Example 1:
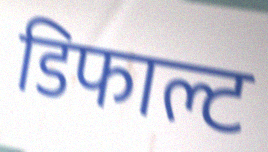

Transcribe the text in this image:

डिफाल्ट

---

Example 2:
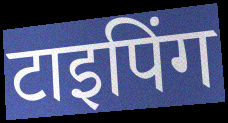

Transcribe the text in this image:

टाइपिंग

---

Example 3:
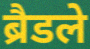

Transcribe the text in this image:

ब्रैडले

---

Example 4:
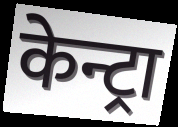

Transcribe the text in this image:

केन्ट्रा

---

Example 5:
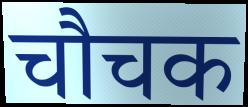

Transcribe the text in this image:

चौचक